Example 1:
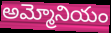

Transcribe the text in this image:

అమ్మోనియం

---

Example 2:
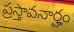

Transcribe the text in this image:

ప్రస్తావనార్హం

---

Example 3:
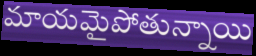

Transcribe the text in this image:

మాయమైపోతున్నాయి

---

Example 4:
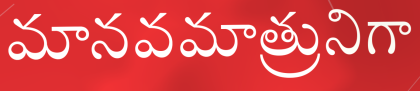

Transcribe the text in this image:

మానవమాత్రునిగా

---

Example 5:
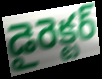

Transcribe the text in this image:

డైరెక్టర్